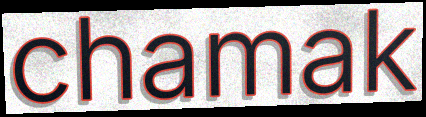
chamak